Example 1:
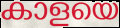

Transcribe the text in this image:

കാളയെ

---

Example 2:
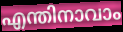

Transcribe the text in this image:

എന്തിനാവാം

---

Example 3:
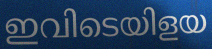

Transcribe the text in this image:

ഇവിടെയിളയ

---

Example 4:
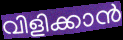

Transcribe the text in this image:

വിളിക്കാൻ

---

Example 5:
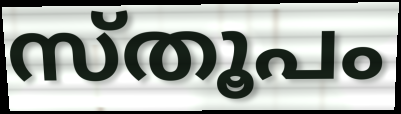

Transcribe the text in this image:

സ്തൂപം